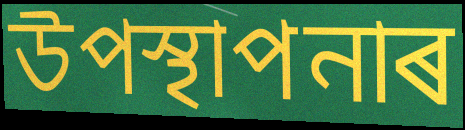
উপস্থাপনাৰ